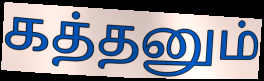
கத்தனும்